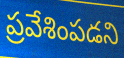
ప్రవేశింపడని